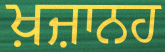
ਖ਼ਜ਼ਾਨਹ